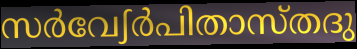
സർവേഽർപിതാസ്തദു